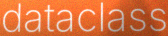
dataclass